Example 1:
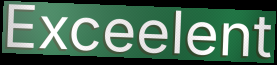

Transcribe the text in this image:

Exceelent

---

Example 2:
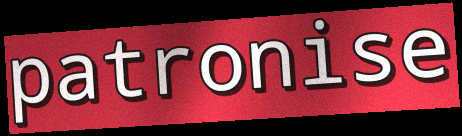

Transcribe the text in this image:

patronise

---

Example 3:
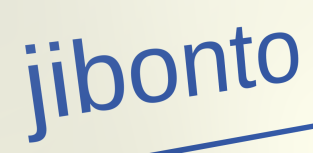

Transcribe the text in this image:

jibonto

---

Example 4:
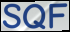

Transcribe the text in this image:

SQF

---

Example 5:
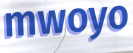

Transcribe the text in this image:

mwoyo